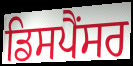
ਡਿਸਪੈਂਸਰ